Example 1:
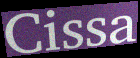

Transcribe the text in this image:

Cissa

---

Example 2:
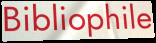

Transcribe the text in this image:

Bibliophile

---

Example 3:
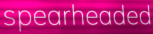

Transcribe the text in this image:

spearheaded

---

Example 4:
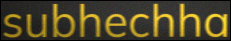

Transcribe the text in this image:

subhechha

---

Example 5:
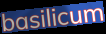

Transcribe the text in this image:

basilicum